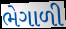
ભેગાળી